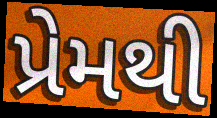
પ્રેમથી